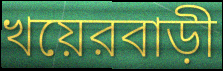
খয়েরবাড়ী